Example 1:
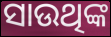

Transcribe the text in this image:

ସାଉଥିଙ୍କ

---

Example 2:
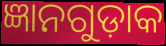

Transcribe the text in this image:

ଜ୍ଞାନଗୁଡ଼ାକ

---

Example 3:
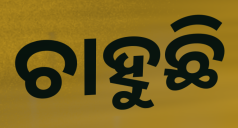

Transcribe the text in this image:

ଚାହୁଛି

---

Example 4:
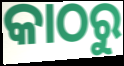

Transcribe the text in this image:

କାଠରୁ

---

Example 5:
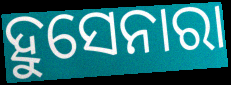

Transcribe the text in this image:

ହୁସେନାରା